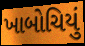
ખાબોચિયું